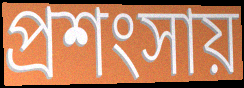
প্রশংসায়